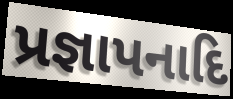
પ્રજ્ઞાપનાદિ